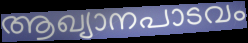
ആഖ്യാനപാടവം